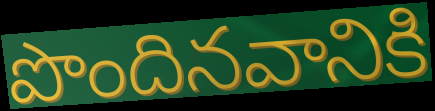
పొందినవానికి